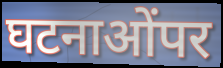
घटनाओंपर